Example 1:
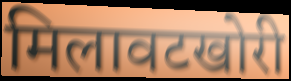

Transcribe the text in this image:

मिलावटखोरी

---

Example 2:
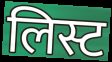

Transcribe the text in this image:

लिस्ट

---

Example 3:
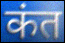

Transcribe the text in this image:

कंत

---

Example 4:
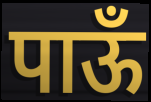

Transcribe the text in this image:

पाऊँ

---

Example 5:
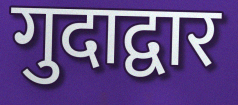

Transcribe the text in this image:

गुदाद्वार